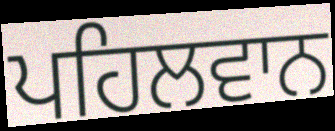
ਪਹਿਲਵਾਨ